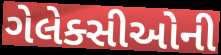
ગેલેક્સીઓની